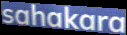
sahakara